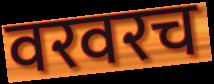
वरवरच